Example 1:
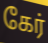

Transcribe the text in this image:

கேர்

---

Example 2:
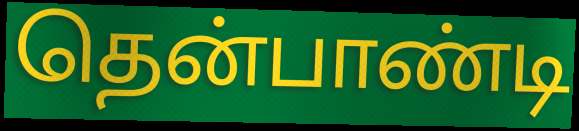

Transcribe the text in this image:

தென்பாண்டி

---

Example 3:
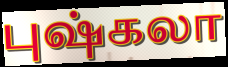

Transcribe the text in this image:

புஷ்கலா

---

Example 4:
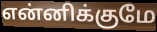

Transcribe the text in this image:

என்னிக்குமே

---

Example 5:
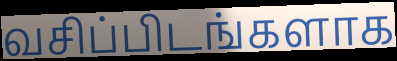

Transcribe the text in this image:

வசிப்பிடங்களாக